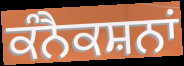
ਕੰਨੈਕਸ਼ਨਾਂ